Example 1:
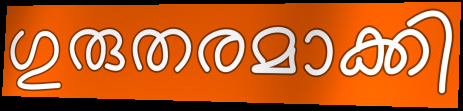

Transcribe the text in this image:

ഗുരുതരമാക്കി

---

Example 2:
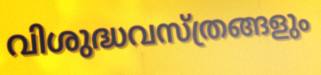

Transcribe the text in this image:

വിശുദ്ധവസ്ത്രങ്ങളും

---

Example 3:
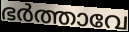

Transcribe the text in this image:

ഭർത്താവേ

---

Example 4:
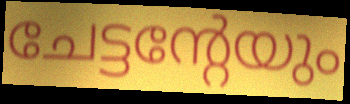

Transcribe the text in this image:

ചേട്ടന്റേയും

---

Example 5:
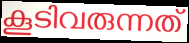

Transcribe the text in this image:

കൂടിവരുന്നത്